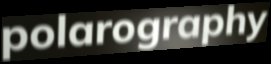
polarography